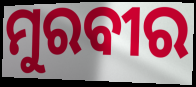
ମୁରବୀର